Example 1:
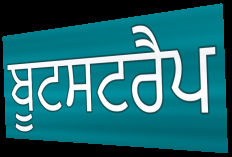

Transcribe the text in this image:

ਬੂਟਸਟਰੈਪ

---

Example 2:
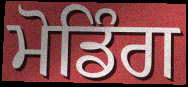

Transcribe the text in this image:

ਮੋਡਿੰਗ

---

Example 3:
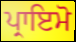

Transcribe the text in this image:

ਪ੍ਰਾਇਮੋ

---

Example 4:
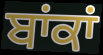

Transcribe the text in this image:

ਬਾਂਕਾਂ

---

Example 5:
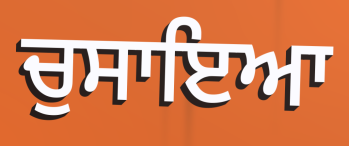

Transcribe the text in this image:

ਚੁਸਾਇਆ